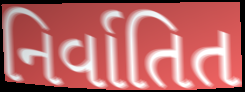
નિર્વાતિત